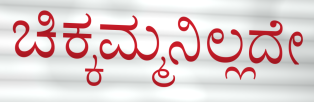
ಚಿಕ್ಕಮ್ಮನಿಲ್ಲದೇ